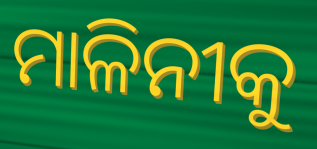
ମାଳିନୀକୁ